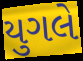
યુગલે